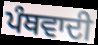
ਪੰਥਵਾਦੀ